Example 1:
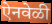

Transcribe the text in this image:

ऐनवेळी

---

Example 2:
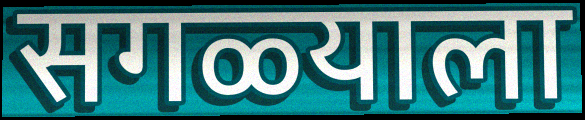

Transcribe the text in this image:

सगळ्याला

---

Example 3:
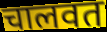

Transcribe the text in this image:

चालवत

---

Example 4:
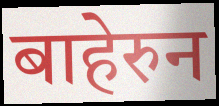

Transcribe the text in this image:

बाहेरुन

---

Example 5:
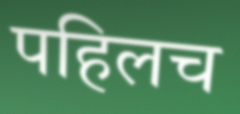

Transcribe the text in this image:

पहिलच